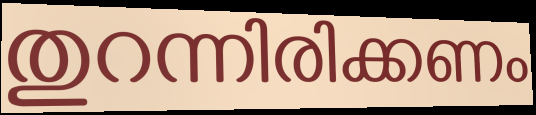
തുറന്നിരിക്കണം